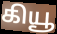
கியூ